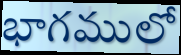
భాగములో